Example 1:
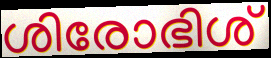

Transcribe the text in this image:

ശിരോഭിശ്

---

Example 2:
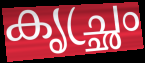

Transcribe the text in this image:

കൃച്ഛ്രം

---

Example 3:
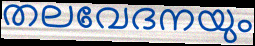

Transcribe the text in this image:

തലവേദനയും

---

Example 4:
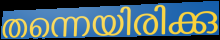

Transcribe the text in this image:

തന്നെയിരിക്കു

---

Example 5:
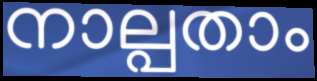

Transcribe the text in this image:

നാല്പതാം